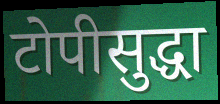
टोपीसुद्धा